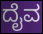
ದೈವ